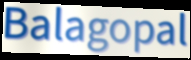
Balagopal